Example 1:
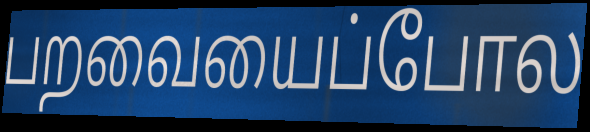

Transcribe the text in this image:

பறவையைப்போல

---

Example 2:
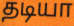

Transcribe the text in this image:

தடியா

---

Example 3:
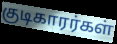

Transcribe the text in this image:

குடிகாரர்கள்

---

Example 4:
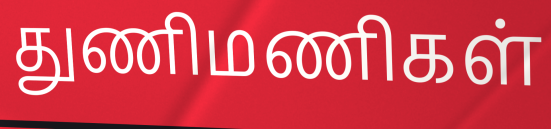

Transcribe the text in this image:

துணிமணிகள்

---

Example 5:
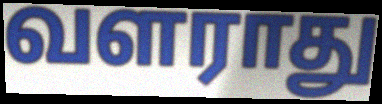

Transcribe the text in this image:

வளராது